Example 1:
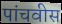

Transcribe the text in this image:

पांचवीस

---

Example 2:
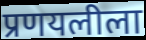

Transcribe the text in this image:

प्रणयलीला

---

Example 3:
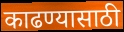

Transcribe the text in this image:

काढण्यासाठी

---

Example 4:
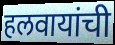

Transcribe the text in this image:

हलवायांची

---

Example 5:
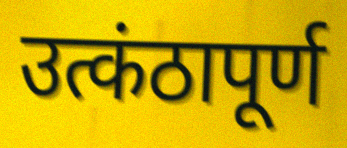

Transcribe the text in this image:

उत्कंठापूर्ण